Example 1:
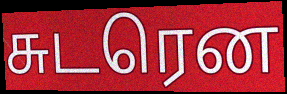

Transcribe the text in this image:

சுடரென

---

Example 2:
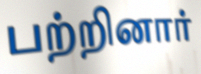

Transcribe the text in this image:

பற்றினார்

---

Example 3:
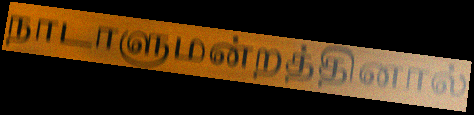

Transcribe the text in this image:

நாடாளுமன்றத்தினால்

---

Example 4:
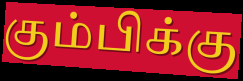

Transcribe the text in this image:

கும்பிக்கு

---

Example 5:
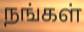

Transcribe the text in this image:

நங்கள்